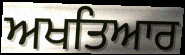
ਅਖਤਿਆਰ